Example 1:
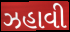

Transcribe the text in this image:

ઝહાવી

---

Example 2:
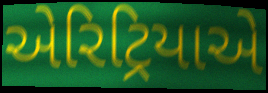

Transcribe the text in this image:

એરિટ્રિયાએ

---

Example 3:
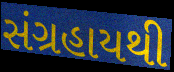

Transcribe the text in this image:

સંગ્રહાયથી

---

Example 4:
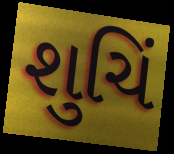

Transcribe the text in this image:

શુચિં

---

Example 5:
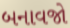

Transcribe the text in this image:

બનાવજો